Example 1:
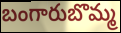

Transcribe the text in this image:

బంగారుబొమ్మ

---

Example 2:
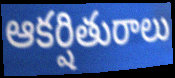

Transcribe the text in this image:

ఆకర్షితురాలు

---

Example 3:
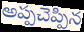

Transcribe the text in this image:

అప్పచెప్పిన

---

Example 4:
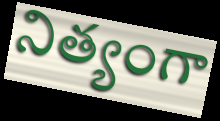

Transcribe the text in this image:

నిత్యంగా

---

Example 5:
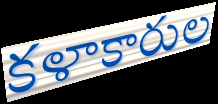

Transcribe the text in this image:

కళాకారుల